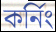
কর্নিং